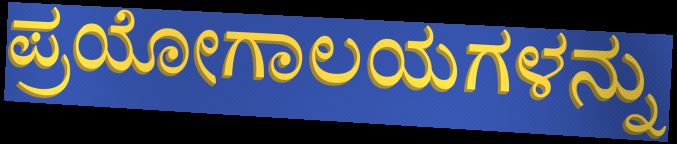
ಪ್ರಯೋಗಾಲಯಗಳನ್ನು